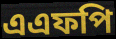
এএফপি